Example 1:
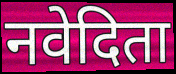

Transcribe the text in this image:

नवेदिता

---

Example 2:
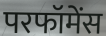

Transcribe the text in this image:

परफॉमेंस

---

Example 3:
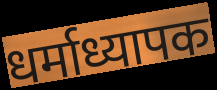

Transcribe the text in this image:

धर्माध्यापक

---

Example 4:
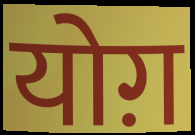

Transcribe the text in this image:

योग़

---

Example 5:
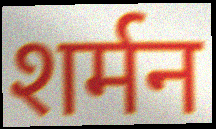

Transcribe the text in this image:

शर्मन